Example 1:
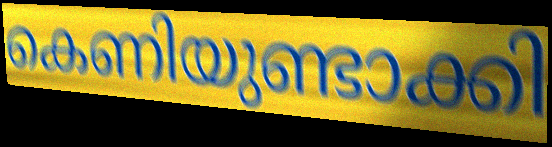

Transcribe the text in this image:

കെണിയുണ്ടാക്കി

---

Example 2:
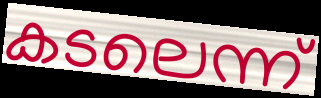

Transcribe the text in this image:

കടലെന്ന്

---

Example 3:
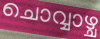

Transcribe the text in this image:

ചൊവ്വാഴ്ച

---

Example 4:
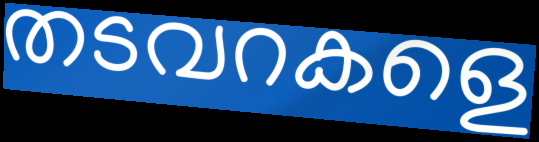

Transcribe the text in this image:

തടവറകളെ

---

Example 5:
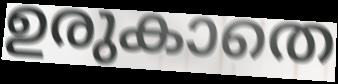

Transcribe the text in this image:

ഉരുകാതെ